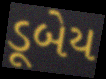
ડૂબેય